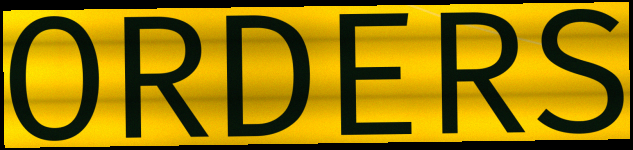
ORDERS